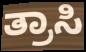
ತ್ರಾಸಿ